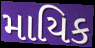
માયિક